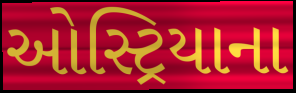
ઓસ્ટ્રિયાના